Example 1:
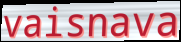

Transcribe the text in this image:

vaisnava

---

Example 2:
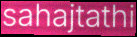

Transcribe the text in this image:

sahajtathi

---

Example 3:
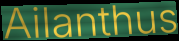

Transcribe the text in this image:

Ailanthus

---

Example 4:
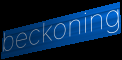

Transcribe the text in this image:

beckoning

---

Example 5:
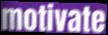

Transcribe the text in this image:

motivate